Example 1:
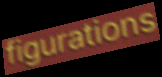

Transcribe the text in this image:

figurations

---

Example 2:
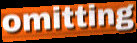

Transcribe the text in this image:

omitting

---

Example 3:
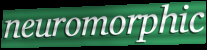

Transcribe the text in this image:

neuromorphic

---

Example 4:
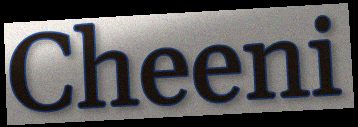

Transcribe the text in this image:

Cheeni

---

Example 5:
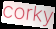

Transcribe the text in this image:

corky